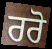
ਰਰੋ